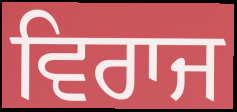
ਵਿਰਾਜ